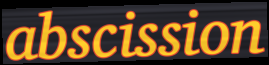
abscission